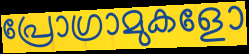
പ്രോഗ്രാമുകളോ